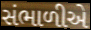
સંભાળીએ